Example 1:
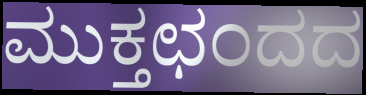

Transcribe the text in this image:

ಮುಕ್ತಛಂದದ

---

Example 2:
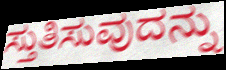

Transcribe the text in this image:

ಸ್ತುತಿಸುವುದನ್ನು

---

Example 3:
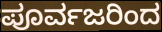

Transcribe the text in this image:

ಪೂರ್ವಜರಿಂದ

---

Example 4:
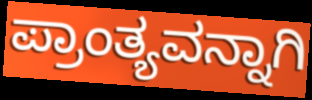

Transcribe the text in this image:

ಪ್ರಾಂತ್ಯವನ್ನಾಗಿ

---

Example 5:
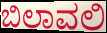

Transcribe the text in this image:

ಬಿಲಾವಲಿ